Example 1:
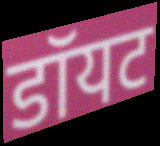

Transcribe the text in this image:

डॉयट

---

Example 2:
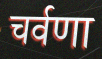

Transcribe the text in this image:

चर्वणा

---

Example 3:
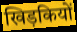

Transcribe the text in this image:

खिड़कियों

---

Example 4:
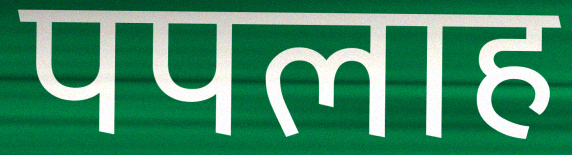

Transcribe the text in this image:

पपलाह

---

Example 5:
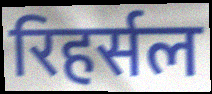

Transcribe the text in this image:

रिहर्सल